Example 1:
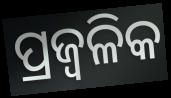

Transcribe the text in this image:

ପ୍ରଜ୍ଵଳିକ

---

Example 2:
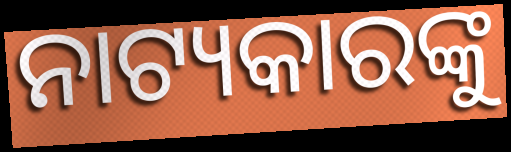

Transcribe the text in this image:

ନାଟ୍ୟକାରଙ୍କୁ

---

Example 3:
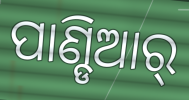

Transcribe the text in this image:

ପାଣ୍ଡିଆର୍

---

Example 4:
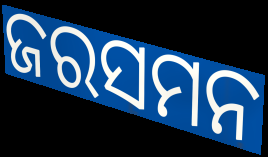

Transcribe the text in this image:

ଜରସମନ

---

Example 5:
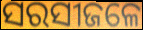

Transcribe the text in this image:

ସରସୀଜଳେ